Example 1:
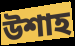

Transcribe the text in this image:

উশাহ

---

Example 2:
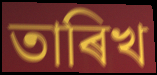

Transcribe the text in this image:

তাৰিখ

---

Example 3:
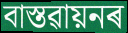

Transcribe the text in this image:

বাস্তৱায়নৰ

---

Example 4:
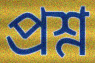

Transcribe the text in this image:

প্ৰশ্ন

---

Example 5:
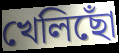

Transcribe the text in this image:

খেলিছোঁ